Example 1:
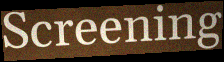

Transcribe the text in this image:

Screening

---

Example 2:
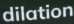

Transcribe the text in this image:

dilation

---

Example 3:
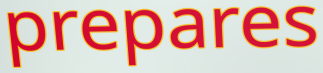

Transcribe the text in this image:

prepares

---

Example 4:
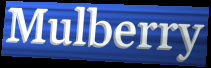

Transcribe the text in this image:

Mulberry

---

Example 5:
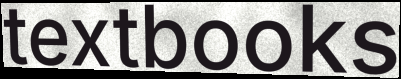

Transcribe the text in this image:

textbooks